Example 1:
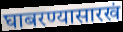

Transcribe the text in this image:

घाबरण्यासारखं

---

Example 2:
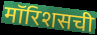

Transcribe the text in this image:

मॉरिशसची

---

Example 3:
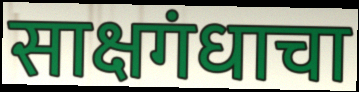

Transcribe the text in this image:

साक्षगंधाचा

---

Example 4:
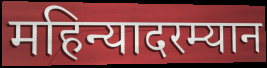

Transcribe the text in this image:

महिन्यादरम्यान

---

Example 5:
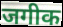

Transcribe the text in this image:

जगीक